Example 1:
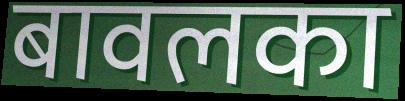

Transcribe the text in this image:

बावलका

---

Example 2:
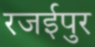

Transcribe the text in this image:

रजईपुर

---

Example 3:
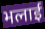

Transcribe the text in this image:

भलाई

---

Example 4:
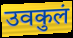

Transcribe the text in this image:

उवकुलं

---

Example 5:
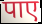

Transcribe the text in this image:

पाए